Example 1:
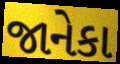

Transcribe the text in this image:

જાનેકા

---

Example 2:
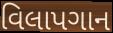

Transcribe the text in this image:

વિલાપગાન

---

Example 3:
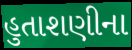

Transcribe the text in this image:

હુતાશણીના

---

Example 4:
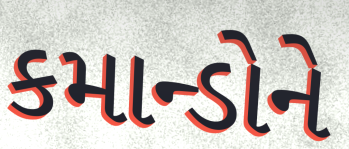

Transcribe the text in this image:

કમાન્ડોને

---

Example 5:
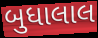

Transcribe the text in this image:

બુધાલાલ